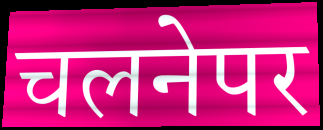
चलनेपर